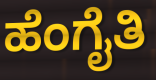
ಹೆಂಗೈತಿ